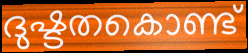
ദുഷ്ടതകൊണ്ട്